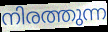
നിരത്തുന്ന